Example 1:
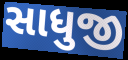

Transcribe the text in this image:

સાધુજી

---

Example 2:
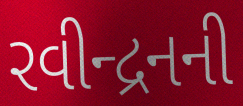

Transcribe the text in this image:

રવીન્દ્રનની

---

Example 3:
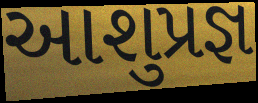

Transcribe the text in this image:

આશુપ્રજ્ઞ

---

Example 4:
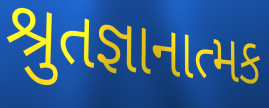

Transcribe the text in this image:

શ્રુતજ્ઞાનાત્મક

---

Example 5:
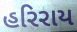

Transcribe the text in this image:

હરિરાય